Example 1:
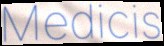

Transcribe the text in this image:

Medicis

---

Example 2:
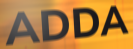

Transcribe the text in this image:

ADDA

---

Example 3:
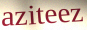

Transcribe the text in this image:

aziteez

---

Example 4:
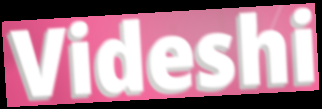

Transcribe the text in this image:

Videshi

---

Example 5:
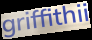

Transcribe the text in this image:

griffithii